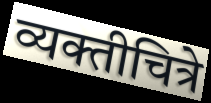
व्यक्तीचित्रे